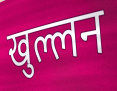
खुल्लन